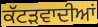
ਕੱਟੜਵਾਦੀਆਂ